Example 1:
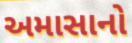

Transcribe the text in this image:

અમાસાનો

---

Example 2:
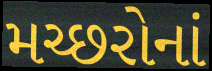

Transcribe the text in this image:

મચ્છરોનાં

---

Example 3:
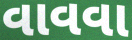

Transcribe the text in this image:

વાવવા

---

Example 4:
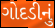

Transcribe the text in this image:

ગોદડીનું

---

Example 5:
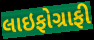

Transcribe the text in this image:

લાઇફોગ્રાફી